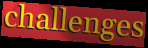
challenges